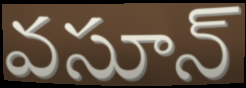
వసూన్